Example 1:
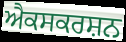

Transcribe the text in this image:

ਐਕਸਕਰਸ਼ਨ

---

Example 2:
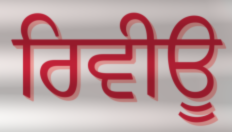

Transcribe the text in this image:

ਰਿਵੀਊ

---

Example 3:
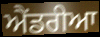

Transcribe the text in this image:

ਐਂਡਰੀਆ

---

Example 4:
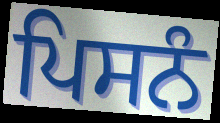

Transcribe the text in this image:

ਪਿਸਨੰ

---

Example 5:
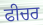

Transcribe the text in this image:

ਫੀਚਰ